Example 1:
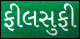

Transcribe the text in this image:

ફીલસુફી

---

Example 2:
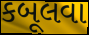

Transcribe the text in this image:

કબૂલવા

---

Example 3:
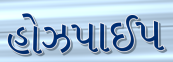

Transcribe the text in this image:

હોઝપાઈપ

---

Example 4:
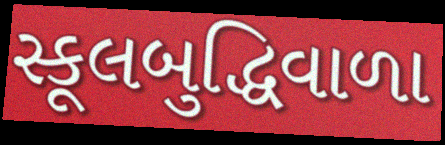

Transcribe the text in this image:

સ્કૂલબુદ્ધિવાળા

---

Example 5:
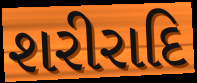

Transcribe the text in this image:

શરીરાદિ